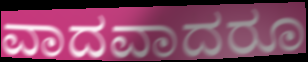
ವಾದವಾದರೂ